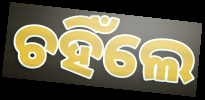
ଚହିଁଲେ